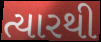
ત્યારથી